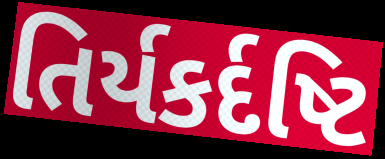
તિર્યકર્દષ્ટિ